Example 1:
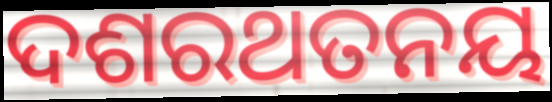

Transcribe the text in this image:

ଦଶରଥତନୟ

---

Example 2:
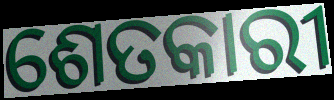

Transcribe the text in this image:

ଶେତକାରୀ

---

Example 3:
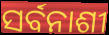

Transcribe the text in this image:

ସର୍ବନାଶୀ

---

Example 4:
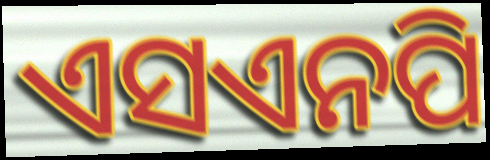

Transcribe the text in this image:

ଏସଏନପି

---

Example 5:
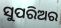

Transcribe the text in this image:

ସୁପରିଅର